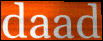
daad